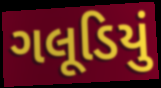
ગલૂડિયું